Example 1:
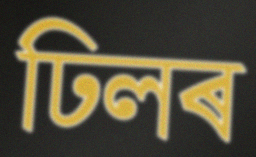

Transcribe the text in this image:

ঢিলৰ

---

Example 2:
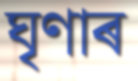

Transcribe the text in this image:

ঘৃণাৰ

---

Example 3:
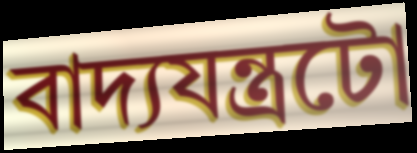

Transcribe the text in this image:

বাদ্যযন্ত্ৰটো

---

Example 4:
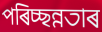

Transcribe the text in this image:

পৰিচ্ছন্নতাৰ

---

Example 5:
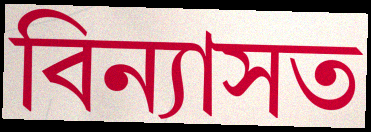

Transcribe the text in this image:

বিন্যাসত